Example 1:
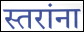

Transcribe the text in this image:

स्तरांना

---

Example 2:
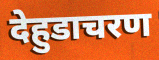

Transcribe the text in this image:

देहुडाचरण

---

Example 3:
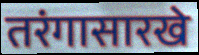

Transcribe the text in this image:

तरंगासारखे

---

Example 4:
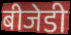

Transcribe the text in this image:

बीजेडी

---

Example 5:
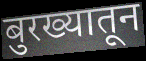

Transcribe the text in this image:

बुरख्यातून